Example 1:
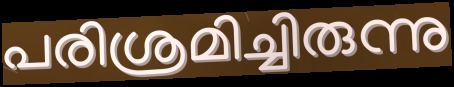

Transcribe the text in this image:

പരിശ്രമിച്ചിരുന്നു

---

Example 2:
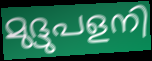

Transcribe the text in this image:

മുദ്ദുപളനി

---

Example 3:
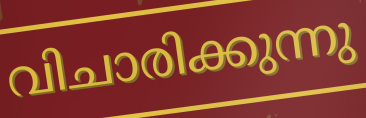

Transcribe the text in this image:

വിചാരിക്കുന്നു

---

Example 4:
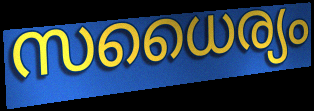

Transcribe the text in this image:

സധൈര്യം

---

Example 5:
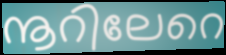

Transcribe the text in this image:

നൂറിലേറെ